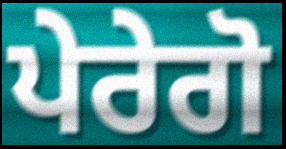
ਪੇਰੇਗੋ